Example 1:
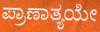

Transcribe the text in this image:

ಪ್ರಾಣಾತ್ಯಯೇ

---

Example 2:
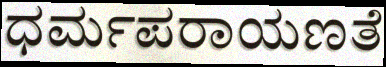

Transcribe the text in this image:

ಧರ್ಮಪರಾಯಣತೆ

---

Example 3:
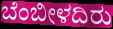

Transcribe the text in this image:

ಬೆಂಬೀಳದಿರು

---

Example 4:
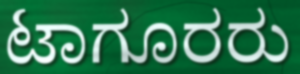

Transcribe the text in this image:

ಟಾಗೂರರು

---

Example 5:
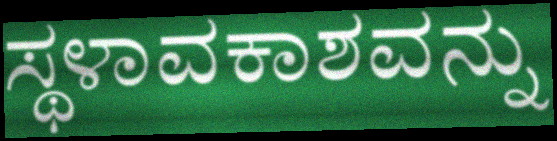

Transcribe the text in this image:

ಸ್ಥಳಾವಕಾಶವನ್ನು